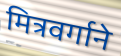
मित्रवर्गाने